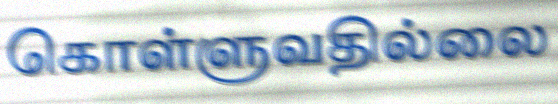
கொள்ளுவதில்லை